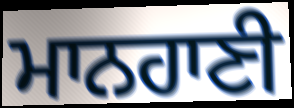
ਮਾਨਹਾਣੀ